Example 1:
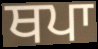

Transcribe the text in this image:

ਥਪਾ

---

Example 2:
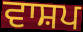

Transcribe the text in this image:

ਵਾਸ਼ਪ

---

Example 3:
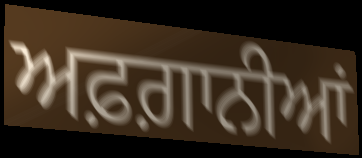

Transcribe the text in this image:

ਅਫ਼ਗ਼ਾਨੀਆਂ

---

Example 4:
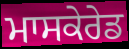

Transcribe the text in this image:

ਮਾਸਕੇਰੇਡ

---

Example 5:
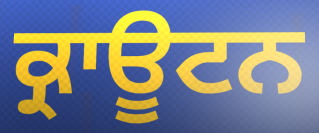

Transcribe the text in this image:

ਕ੍ਰਾਊਟਨ